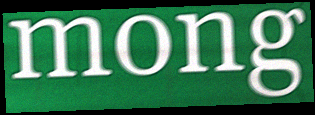
mong